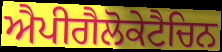
ਐਪੀਗੈਲੋਕੇਟੈਚਿਨ